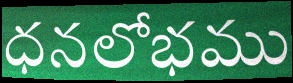
ధనలోభము